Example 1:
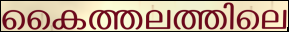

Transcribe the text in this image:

കൈത്തലത്തിലെ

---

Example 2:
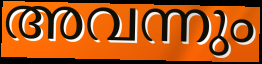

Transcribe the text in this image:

അവന്നും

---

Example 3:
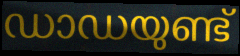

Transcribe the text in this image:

ഡാഡയുണ്ട്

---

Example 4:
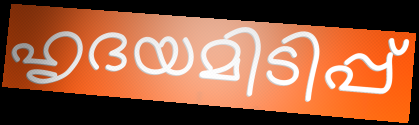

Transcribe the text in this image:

ഹൃദയമിടിപ്പ്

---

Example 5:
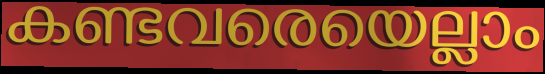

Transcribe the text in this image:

കണ്ടവരെയെല്ലാം